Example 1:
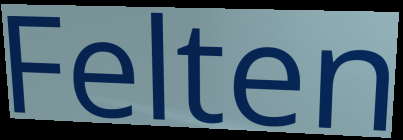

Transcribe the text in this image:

Felten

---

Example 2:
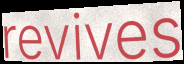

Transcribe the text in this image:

revives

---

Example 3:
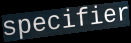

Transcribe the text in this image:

specifier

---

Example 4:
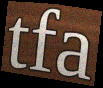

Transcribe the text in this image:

tfa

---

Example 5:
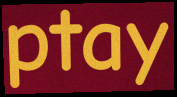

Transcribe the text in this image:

ptay